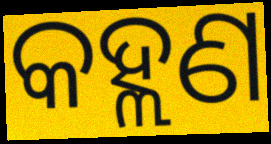
କହ୍ଲଣ